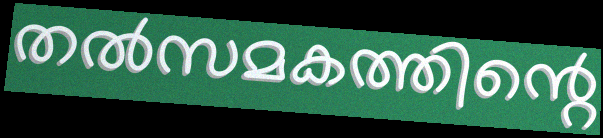
തൽസമകത്തിന്റെ